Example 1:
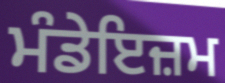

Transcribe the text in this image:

ਮੰਡੇਇਜ਼ਮ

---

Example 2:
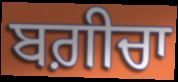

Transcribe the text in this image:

ਬਗ਼ੀਚਾ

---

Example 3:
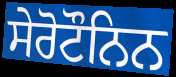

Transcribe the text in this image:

ਸੇਰੋਟੌਨਿਨ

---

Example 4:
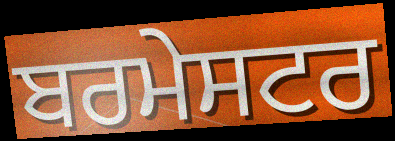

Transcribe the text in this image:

ਬਰਮੇਸਟਰ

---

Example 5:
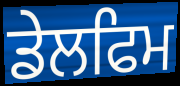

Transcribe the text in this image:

ਡੇਲਫਿਮ